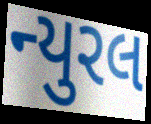
ન્યુરલ